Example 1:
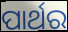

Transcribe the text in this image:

ପାର୍ଥର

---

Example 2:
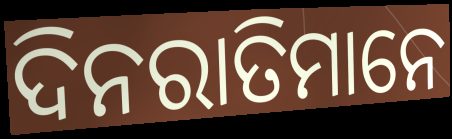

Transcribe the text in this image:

ଦିନରାତିମାନେ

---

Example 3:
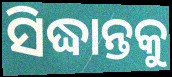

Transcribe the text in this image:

ସିଦ୍ଧାନ୍ତକୁ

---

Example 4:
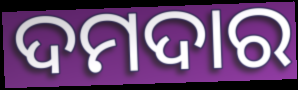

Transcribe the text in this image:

ଦମଦାର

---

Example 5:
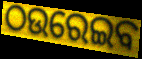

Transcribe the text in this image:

ଠଉରେଇବ